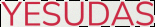
YESUDAS